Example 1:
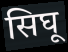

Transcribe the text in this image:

सिघू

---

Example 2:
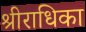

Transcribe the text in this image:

श्रीराधिका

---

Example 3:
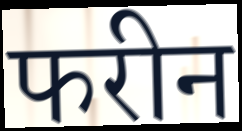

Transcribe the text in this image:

फरीन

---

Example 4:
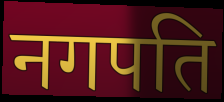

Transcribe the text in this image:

नगपति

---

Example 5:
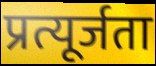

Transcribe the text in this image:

प्रत्यूर्जता